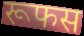
रूफस